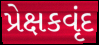
પ્રેક્ષકવૃંદ